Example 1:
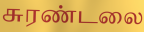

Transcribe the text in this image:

சுரண்டலை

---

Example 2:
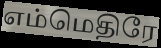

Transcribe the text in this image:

எம்மெதிரே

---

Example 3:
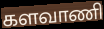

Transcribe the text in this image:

களவாணி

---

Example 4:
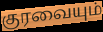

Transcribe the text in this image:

குரவையும்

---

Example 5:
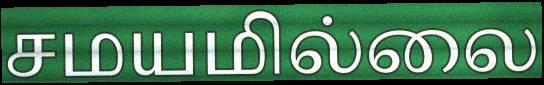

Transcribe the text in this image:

சமயமில்லை